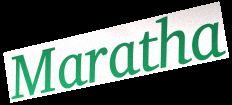
Maratha